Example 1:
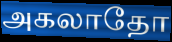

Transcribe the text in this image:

அகலாதோ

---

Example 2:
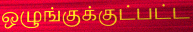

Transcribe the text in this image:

ஒழுங்குக்குட்பட்ட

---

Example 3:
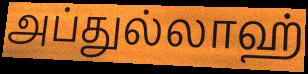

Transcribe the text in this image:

அப்துல்லாஹ்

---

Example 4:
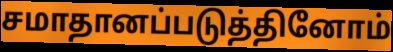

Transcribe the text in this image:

சமாதானப்படுத்தினோம்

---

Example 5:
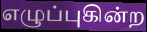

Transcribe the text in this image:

எழுப்புகின்ற